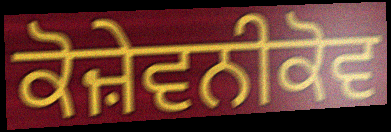
ਕੋਜ਼ੇਵਨੀਕੋਵ